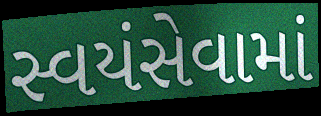
સ્વયંસેવામાં